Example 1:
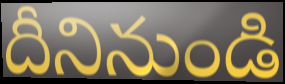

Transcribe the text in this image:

దీనినుండి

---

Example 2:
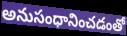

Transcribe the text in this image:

అనుసంధానించడంతో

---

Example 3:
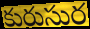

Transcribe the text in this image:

కురుసుర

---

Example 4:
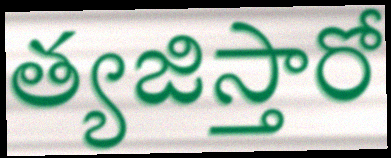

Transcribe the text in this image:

త్యజిస్తారో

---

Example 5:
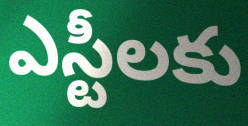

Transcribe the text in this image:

ఎస్టీలకు